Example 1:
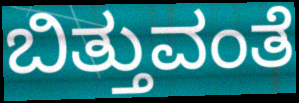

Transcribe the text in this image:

ಬಿತ್ತುವಂತೆ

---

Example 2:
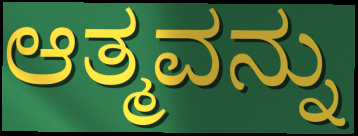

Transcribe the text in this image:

ಆತ್ಮವನ್ನು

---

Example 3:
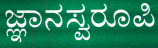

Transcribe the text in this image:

ಜ್ಞಾನಸ್ವರೂಪಿ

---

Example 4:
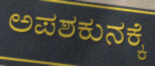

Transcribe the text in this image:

ಅಪಶಕುನಕ್ಕೆ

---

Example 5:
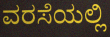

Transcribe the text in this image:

ವರಸೆಯಲ್ಲಿ